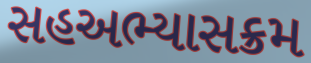
સહઅભ્યાસક્રમ